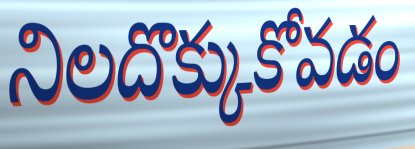
నిలదొక్కుకోవడం